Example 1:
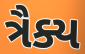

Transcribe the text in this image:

ત્રૈક્ય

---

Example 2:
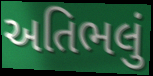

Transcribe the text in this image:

અતિભલું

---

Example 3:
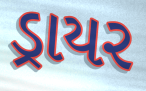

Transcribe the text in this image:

ડ્રાયર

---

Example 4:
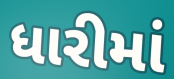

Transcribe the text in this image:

ધારીમાં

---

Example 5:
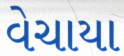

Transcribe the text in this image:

વેચાયા